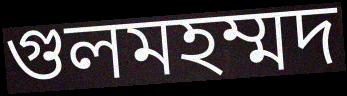
গুলমহম্মদ